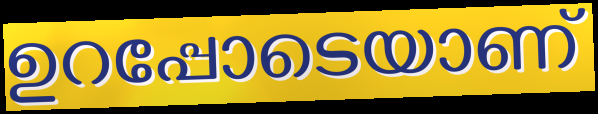
ഉറപ്പോടെയാണ്